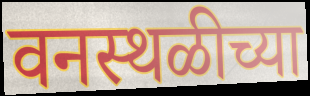
वनस्थळीच्या